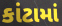
કાંટામાં